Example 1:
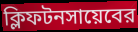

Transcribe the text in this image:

ক্লিফটনসায়েবের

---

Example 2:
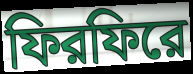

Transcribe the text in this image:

ফিরফিরে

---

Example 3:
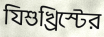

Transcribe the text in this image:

যিশুখ্রিস্টের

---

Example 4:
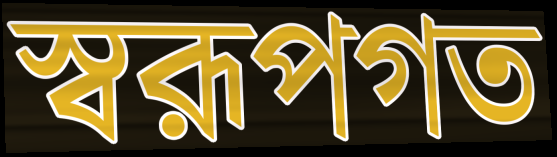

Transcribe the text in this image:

স্বরূপগত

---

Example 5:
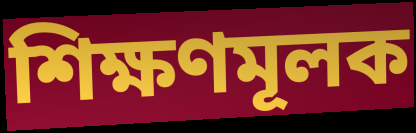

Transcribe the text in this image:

শিক্ষণমূলক